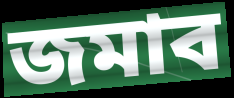
জমাব